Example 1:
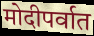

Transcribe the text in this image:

मोदीपर्वात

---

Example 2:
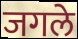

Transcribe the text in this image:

जगले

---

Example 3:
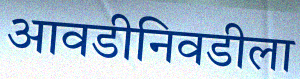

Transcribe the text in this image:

आवडीनिवडीला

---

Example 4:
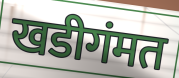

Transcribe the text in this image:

खडीगंमत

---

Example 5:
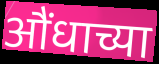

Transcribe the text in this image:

औंधाच्या